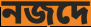
নজদে